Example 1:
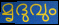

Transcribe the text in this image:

മൃദുവും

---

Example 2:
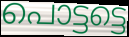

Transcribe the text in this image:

പൊട്ടട്ടെ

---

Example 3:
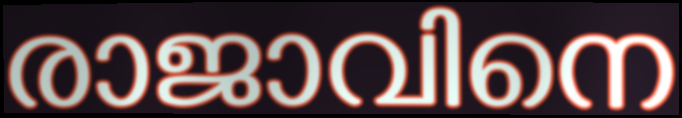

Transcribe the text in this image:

രാജാവിനെ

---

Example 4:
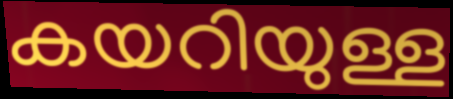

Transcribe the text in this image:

കയറിയുള്ള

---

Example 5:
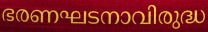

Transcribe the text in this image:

ഭരണഘടനാവിരുദ്ധ